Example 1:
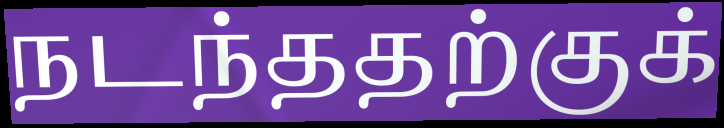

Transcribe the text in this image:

நடந்ததற்குக்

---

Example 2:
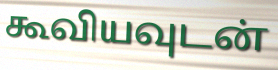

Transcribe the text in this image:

கூவியவுடன்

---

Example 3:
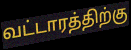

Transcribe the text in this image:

வட்டாரத்திற்கு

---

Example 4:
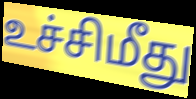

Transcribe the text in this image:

உச்சிமீது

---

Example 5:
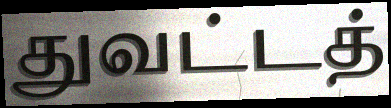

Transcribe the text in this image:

துவட்டத்